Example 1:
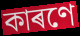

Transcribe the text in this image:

কাৰণে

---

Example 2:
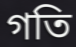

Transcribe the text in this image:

গতি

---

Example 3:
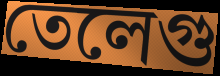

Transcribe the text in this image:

তেলেগু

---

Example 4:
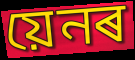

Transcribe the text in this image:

য়েনৰ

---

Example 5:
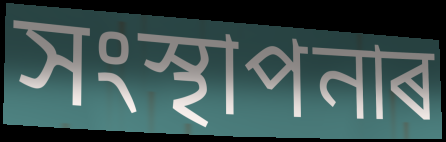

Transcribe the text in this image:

সংস্থাপনাৰ